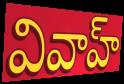
వివాహ్